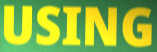
USING